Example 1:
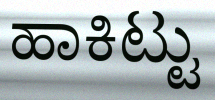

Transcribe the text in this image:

ಹಾಕಿಟ್ಟು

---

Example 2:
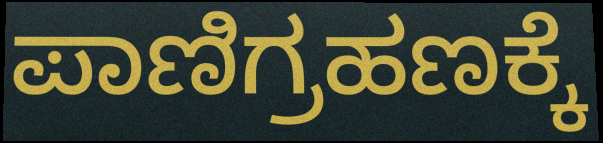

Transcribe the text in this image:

ಪಾಣಿಗ್ರಹಣಕ್ಕೆ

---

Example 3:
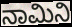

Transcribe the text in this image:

ನಾಮಿನಿ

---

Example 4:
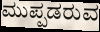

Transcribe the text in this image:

ಮುಪ್ಪಡರುವ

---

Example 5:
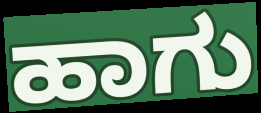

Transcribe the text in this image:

ಹಾಗು